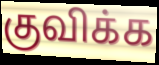
குவிக்க